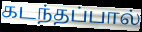
கடந்தப்பால்